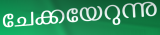
ചേക്കയേറുന്നു